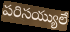
పరిసయ్యులే